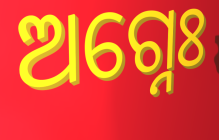
ଅଗ୍ନେଃ